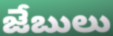
జేబులు